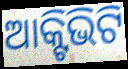
ଆକ୍ଟିଭିଟି